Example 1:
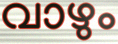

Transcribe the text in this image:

വാഴും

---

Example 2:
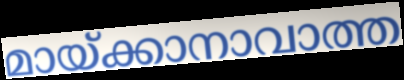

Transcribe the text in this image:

മായ്ക്കാനാവാത്ത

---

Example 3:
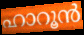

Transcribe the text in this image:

ഹാറൂൻ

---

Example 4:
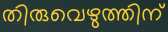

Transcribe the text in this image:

തിരുവെഴുത്തിന്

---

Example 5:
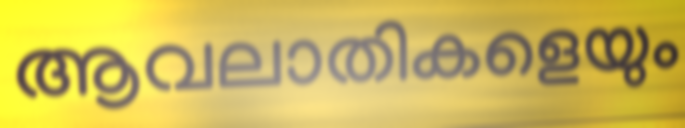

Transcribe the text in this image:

ആവലാതികളെയും